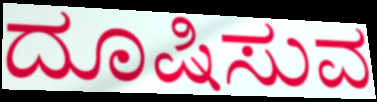
ದೂಷಿಸುವ